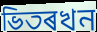
ভিতৰখন